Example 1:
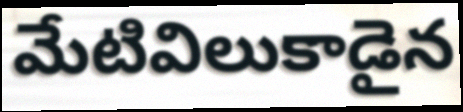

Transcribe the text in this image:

మేటివిలుకాడైన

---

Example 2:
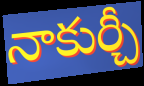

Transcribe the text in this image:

నాకుర్చీ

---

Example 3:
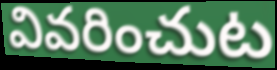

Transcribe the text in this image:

వివరించుట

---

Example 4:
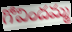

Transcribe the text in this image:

గోవిందమ్మ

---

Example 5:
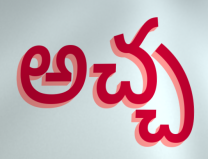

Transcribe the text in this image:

అచ్చ